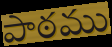
పాఠము